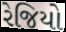
રેજિયો